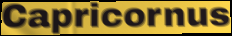
Capricornus